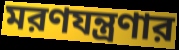
মরণযন্ত্রণার